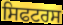
ਸਿਫਟਰਸ